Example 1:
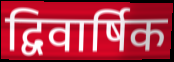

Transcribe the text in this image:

द्विवार्षिक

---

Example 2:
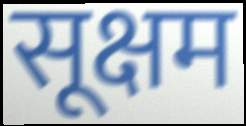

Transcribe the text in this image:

सूक्षम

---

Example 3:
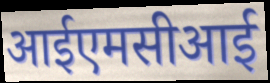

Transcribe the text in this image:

आईएमसीआई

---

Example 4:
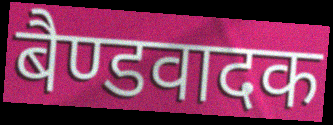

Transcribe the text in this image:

बैण्डवादक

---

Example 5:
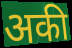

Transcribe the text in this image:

अकी